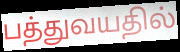
பத்துவயதில்